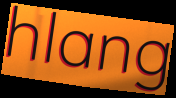
hlang